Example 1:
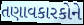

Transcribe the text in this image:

તણાવકારકોને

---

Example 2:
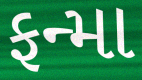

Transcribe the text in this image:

ફન્મા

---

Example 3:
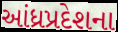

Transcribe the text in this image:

આંધ્રપ્રદેશના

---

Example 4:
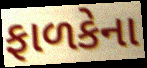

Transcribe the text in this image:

ફાળકેના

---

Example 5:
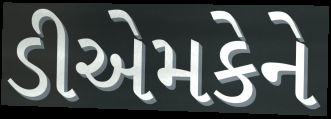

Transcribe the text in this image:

ડીએમકેને